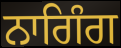
ਨਾਗਿੰਗ